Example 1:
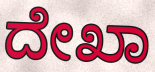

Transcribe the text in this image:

ದೇಖಾ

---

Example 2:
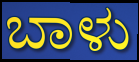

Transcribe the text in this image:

ಬಾಳು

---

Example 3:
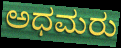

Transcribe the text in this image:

ಅಧಮರು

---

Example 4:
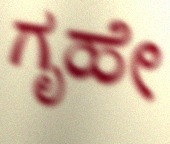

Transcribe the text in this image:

ಗೃಹೇ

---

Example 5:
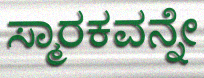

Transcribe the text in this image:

ಸ್ಮಾರಕವನ್ನೇ